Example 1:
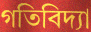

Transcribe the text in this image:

গতিবিদ্যা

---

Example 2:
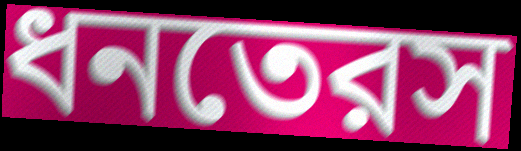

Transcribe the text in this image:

ধনতেরস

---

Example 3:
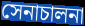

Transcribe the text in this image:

সেনাচালনা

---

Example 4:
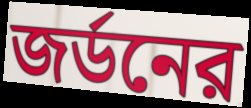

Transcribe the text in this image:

জর্ডনের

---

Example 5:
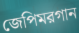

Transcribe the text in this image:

জেপিমরগান